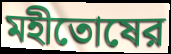
মহীতোষের